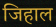
जिहाल